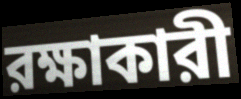
রক্ষাকারী